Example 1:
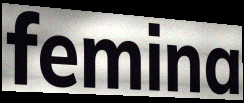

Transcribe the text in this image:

femina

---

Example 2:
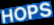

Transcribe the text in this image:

HOPS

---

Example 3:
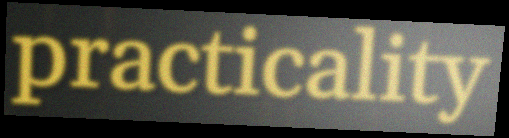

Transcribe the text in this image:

practicality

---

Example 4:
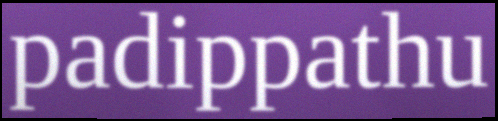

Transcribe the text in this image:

padippathu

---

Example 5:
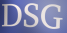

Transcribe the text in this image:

DSG